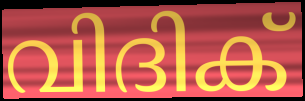
വിദിക്